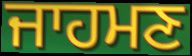
ਜਾਹਮਣ